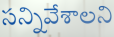
సన్నివేశాలని